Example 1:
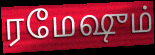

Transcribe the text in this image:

ரமேஷும்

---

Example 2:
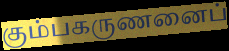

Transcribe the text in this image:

கும்பகருணனைப்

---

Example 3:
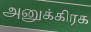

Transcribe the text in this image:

அனுக்கிரக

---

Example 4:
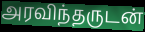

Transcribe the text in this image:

அரவிந்தருடன்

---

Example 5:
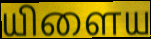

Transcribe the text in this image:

யிளைய